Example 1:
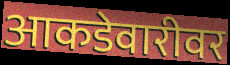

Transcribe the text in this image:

आकडेवारीवर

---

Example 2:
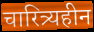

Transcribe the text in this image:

चारित्र्यहीन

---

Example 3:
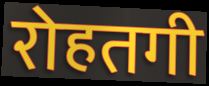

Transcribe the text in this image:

रोहतगी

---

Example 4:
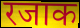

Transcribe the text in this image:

रजाक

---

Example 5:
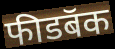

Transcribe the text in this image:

फीडबॅक